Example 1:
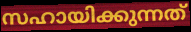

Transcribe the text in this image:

സഹായിക്കുന്നത്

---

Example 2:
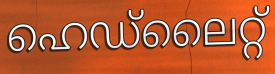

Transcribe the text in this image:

ഹെഡ്ലൈറ്റ്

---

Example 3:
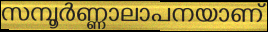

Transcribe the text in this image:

സമ്പൂർണ്ണാലാപനയാണ്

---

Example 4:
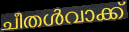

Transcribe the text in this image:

ചീതൾവാക്ക്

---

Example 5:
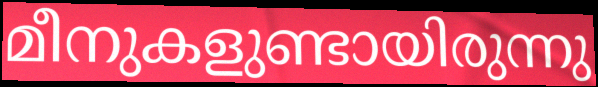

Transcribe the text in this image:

മീനുകളുണ്ടായിരുന്നു